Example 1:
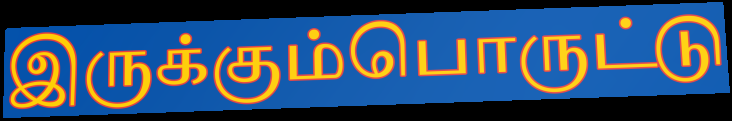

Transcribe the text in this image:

இருக்கும்பொருட்டு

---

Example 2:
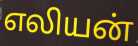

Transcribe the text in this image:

எலியன்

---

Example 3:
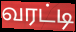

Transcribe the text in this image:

வரட்டி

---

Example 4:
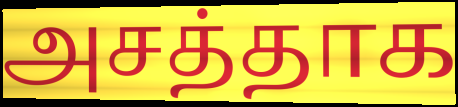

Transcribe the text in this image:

அசத்தாக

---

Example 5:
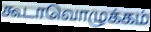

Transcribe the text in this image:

கூடாவொழுக்கம்